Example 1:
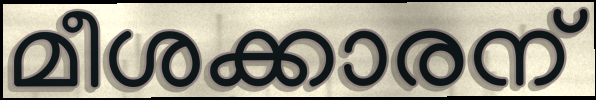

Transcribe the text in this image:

മീശക്കാരന്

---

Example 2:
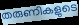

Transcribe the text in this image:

തരുണികളുടെ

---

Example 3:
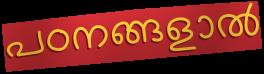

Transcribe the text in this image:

പഠനങ്ങളാൽ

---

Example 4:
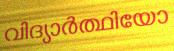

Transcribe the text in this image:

വിദ്യാർത്ഥിയോ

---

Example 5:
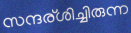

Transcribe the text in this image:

സന്ദര്ശിച്ചിരുന്ന